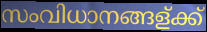
സംവിധാനങ്ങള്ക്ക്